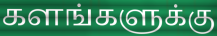
களங்களுக்கு